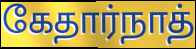
கேதார்நாத்